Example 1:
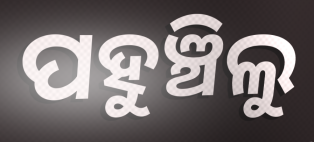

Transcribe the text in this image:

ପହୁଞ୍ଚିଲୁ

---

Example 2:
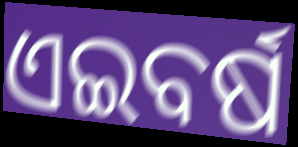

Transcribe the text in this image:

ଏଇବର୍ଷ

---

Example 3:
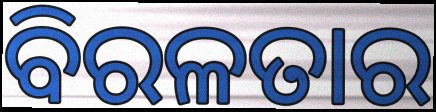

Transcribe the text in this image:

ବିରଳତାର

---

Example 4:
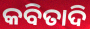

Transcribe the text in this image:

କବିତାଦି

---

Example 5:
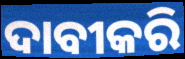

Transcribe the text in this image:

ଦାବୀକରି